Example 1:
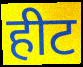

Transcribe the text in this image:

हीट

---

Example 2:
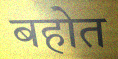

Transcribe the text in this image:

बहोत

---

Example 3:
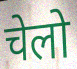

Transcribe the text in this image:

चेलो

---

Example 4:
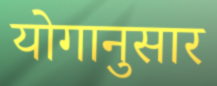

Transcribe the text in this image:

योगानुसार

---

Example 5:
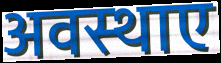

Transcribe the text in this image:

अवस्थाए